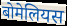
बोमेलियस